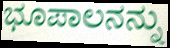
ಭೂಪಾಲನನ್ನು